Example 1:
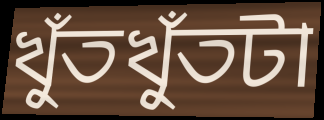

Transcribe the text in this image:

খুঁতখুঁতটা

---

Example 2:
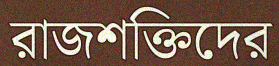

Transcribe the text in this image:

রাজশক্তিদের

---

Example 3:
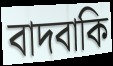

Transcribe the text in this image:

বাদবাকি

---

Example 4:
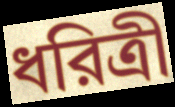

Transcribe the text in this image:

ধরিত্রী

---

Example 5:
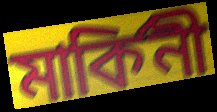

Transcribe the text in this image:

মার্কিনী